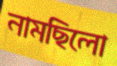
নামছিলো